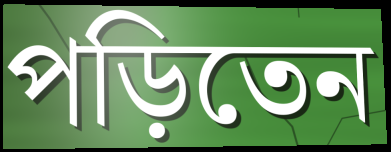
পড়িতেন